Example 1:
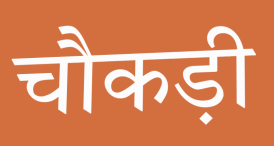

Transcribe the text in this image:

चौकड़ी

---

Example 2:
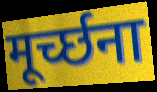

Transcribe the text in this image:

मूर्च्छना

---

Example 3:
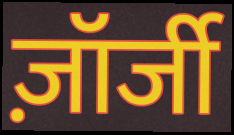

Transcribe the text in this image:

ज़ॉर्जी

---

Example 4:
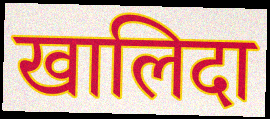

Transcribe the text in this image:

खालिदा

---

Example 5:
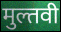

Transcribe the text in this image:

मुल्तवी